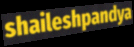
shaileshpandya